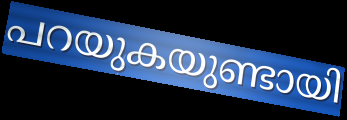
പറയുകയുണ്ടായി